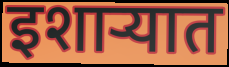
इशाऱ्यात